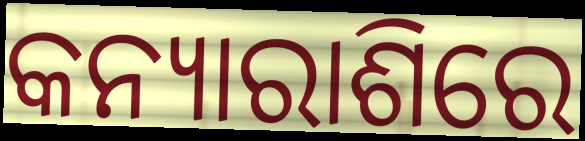
କନ୍ୟାରାଶିରେ